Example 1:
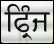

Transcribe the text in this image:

ਫ੍ਰਿੰਜ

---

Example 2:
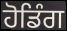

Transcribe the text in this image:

ਹੋਡਿੰਗ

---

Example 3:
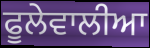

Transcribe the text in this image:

ਫੂਲੇਵਾਲੀਆ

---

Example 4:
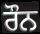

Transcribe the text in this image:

ਰੌਨ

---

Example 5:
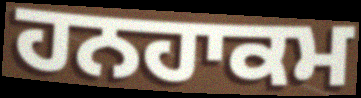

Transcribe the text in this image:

ਹਨਹਾਕਮ